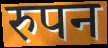
रुपन